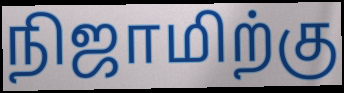
நிஜாமிற்கு